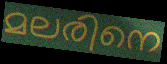
മലരിനെ